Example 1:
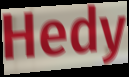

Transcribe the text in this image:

Hedy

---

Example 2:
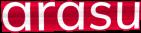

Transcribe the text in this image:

arasu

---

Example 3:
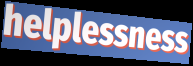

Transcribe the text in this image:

helplessness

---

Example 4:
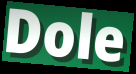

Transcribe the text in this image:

Dole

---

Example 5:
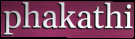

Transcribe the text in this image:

phakathi